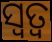
ସ୍ୱତ୍ୱ